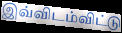
இவ்விடம்விட்டு